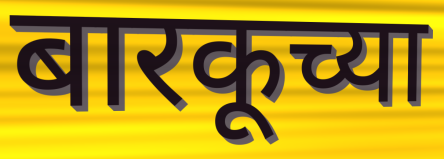
बारकूच्या